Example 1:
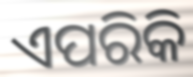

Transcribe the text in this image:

ଏପରିକି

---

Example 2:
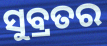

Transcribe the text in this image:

ସୁବ୍ରତର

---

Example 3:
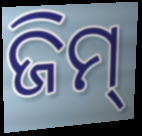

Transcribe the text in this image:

ଜିମ୍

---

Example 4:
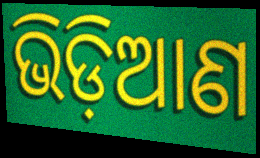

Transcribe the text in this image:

ଭିଡ଼ିଆଣ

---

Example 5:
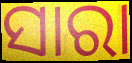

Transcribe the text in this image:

ସାରା